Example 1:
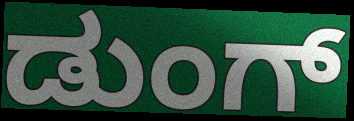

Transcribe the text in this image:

ಡುಂಗ್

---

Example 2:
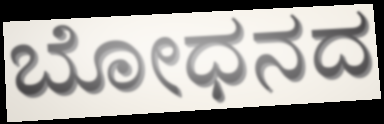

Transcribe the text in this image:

ಬೋಧನದ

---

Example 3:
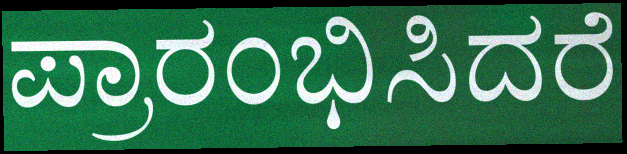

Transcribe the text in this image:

ಪ್ರಾರಂಭಿಸಿದರೆ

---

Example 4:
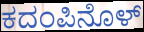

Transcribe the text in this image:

ಕದಂಪಿನೊಳ್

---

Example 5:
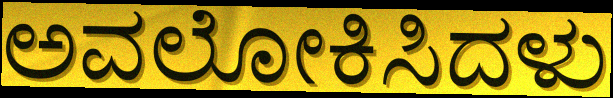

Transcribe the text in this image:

ಅವಲೋಕಿಸಿದಳು